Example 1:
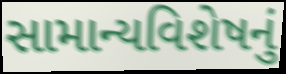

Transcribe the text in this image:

સામાન્યવિશેષનું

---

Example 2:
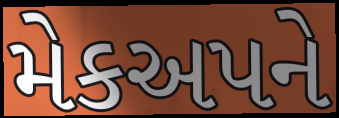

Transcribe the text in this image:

મેકઅપને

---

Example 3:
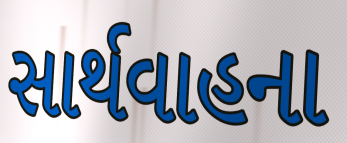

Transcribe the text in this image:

સાર્થવાહના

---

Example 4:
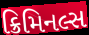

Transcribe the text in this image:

ક્રિમિનલ્સ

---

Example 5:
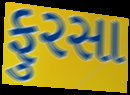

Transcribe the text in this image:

ફુરસા